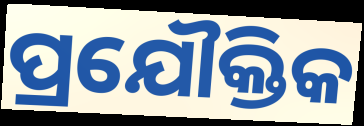
ପ୍ରଯୌକ୍ତିକ